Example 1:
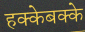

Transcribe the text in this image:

हक्केबक्के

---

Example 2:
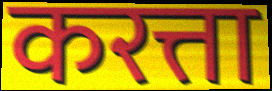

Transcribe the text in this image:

करत्ता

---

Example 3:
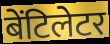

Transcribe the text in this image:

बेंटिलेटर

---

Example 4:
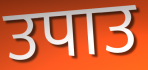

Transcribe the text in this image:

उपाउ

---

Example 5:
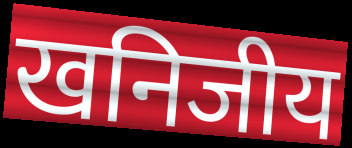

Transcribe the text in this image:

खनिजीय